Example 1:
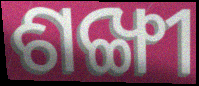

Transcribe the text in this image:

ଶଙ୍ଖୀ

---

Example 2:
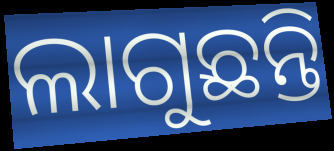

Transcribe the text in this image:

ଲାଗୁଛନ୍ତି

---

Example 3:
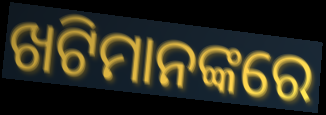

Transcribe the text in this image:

ଖଟିମାନଙ୍କରେ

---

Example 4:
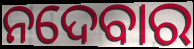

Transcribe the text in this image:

ନଦେବାର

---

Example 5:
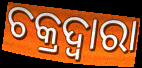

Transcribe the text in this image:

ଚକ୍ରଦ୍ୱାରା